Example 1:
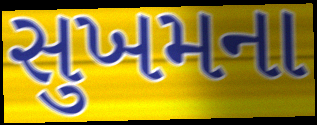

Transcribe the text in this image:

સુખમના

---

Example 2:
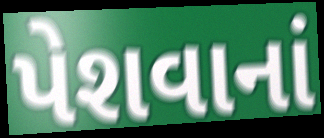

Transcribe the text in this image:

પેશવાનાં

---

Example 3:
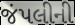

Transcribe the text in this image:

જંપલીની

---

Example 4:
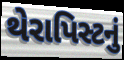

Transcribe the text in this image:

થેરાપિસ્ટનું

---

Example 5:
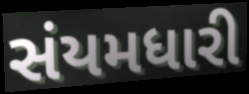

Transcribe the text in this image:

સંયમધારી